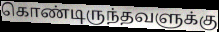
கொண்டிருந்தவளுக்கு